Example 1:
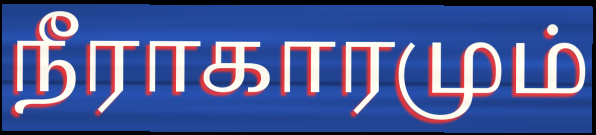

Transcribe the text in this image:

நீராகாரமும்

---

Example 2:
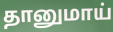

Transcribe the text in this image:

தானுமாய்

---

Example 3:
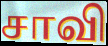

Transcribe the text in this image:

சாவி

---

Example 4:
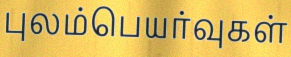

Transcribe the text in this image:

புலம்பெயர்வுகள்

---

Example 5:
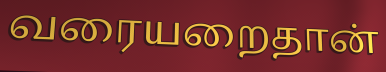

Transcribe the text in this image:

வரையறைதான்